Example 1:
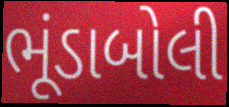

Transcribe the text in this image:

ભૂંડાબોલી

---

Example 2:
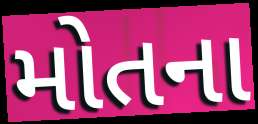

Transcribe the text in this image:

મોતના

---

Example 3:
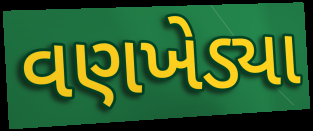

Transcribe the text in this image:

વણખેડ્યા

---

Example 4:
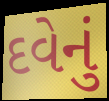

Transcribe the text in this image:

દવેનું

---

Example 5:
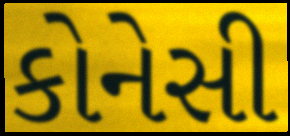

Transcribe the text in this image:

કોનેસી